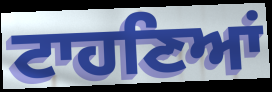
ਟਾਹਣਿਆਂ